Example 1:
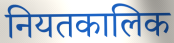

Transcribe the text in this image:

नियतकालिक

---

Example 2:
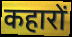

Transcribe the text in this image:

कहारों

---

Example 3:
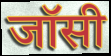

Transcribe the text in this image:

जॉसी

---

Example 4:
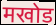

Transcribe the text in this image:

मखोड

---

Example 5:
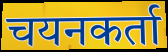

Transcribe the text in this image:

चयनकर्ता